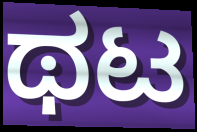
ಥಟ